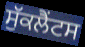
ਸੁੱਕਲੈਂਟਸ